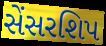
સેંસરશિપ